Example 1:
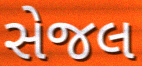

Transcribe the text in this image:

સેજલ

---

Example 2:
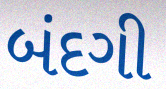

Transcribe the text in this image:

બંદગી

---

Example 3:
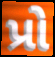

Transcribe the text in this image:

પ્રો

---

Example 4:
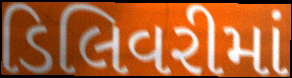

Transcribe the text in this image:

ડિલિવરીમાં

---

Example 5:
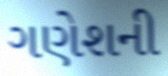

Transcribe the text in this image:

ગણેશની